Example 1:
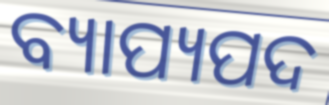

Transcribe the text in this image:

ବ୍ୟାପ୍ୟପଦ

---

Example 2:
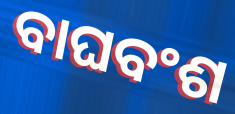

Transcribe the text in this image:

ବାଘବଂଶ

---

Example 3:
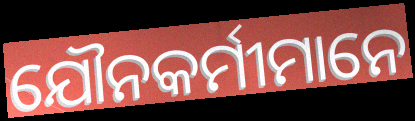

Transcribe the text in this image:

ଯୌନକର୍ମୀମାନେ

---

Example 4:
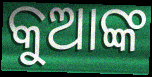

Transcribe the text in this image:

କୁଆଙ୍କ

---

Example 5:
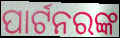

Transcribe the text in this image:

ପାର୍ଟନରଙ୍କ